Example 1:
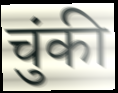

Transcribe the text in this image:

चुंकी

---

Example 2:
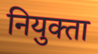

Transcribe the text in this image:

नियुक्ता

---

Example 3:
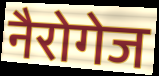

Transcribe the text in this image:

नैरोगेज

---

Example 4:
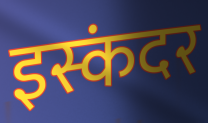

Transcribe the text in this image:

इस्कंदर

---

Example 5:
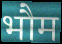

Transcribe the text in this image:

भौम